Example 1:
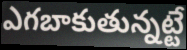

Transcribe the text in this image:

ఎగబాకుతున్నట్టే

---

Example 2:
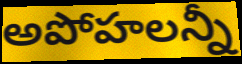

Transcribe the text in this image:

అపోహలన్నీ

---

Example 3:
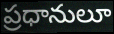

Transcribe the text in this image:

ప్రధానులూ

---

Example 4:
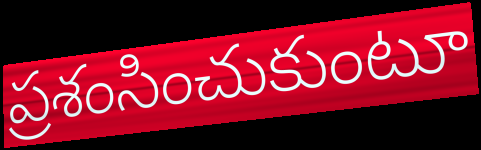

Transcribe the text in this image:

ప్రశంసించుకుంటూ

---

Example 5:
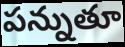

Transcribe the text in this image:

పన్నుతూ